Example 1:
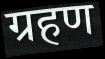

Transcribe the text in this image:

ग्रहण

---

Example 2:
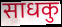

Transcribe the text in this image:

साधकु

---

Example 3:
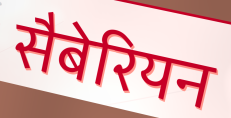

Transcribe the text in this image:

सैबेरियन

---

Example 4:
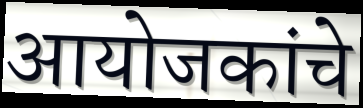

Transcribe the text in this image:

आयोजकांचे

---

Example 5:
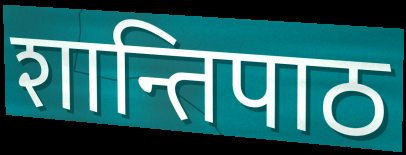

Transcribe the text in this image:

शान्तिपाठ